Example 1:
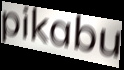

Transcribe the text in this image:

pikabu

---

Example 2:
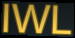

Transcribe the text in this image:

IWL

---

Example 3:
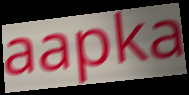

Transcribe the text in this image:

aapka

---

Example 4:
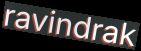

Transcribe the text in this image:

ravindrak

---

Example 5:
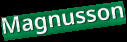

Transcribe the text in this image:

Magnusson